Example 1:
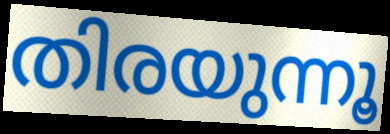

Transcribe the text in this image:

തിരയുന്നൂ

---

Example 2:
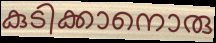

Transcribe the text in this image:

കുടിക്കാനൊരു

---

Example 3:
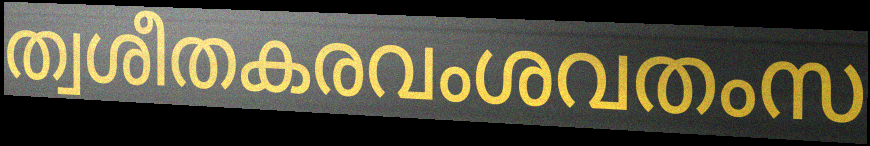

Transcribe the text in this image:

ത്വശീതകരവംശവതംസ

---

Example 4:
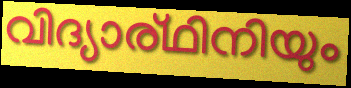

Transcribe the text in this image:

വിദ്യാര്ഥിനിയും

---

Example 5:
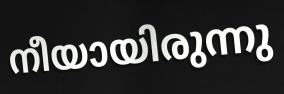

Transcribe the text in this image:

നീയായിരുന്നു